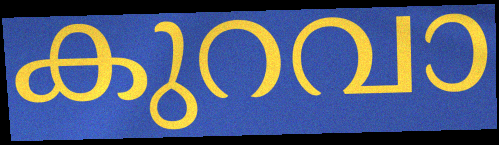
കുറവാ